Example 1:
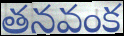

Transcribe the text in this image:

తనవంక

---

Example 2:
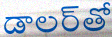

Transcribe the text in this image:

డాలర్‌తో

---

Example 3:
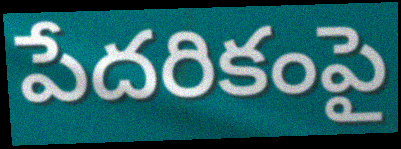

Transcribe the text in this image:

పేదరికంపై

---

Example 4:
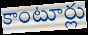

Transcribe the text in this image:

కాంటూర్లు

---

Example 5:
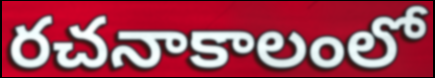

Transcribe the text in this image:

రచనాకాలంలో